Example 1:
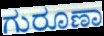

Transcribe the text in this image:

ಗುರೂಣಾ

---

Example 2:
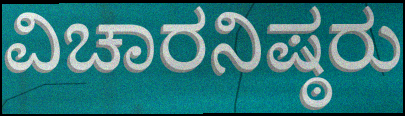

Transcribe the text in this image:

ವಿಚಾರನಿಷ್ಠರು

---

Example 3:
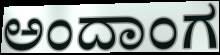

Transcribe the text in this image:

ಅಂದಾಂಗ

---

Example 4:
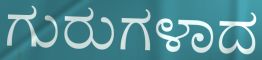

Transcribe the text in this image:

ಗುರುಗಳಾದ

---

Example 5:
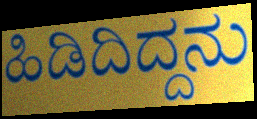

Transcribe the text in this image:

ಹಿಡಿದಿದ್ದನು